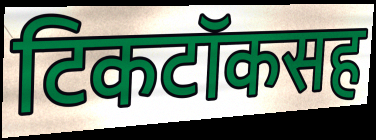
टिकटॉकसह